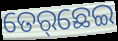
ତେର୍‌ଛେଇ